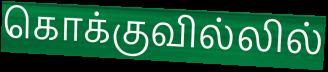
கொக்குவில்லில்